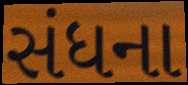
સંધના